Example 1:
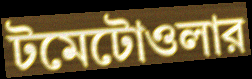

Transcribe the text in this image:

টমেটোওলার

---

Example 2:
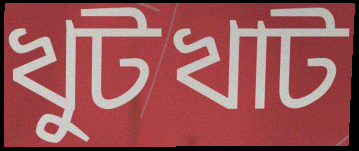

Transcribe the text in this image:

খুটখাট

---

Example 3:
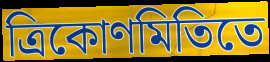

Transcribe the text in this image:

ত্রিকোণমিতিতে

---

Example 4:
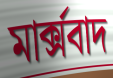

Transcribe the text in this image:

মার্ক্সবাদ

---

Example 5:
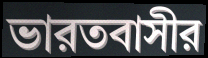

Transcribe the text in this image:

ভারতবাসীর